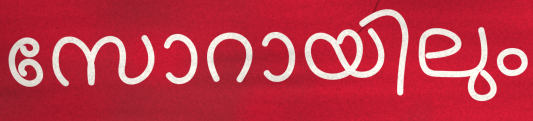
സോറായിലും